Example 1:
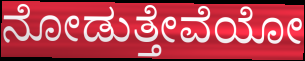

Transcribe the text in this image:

ನೋಡುತ್ತೇವೆಯೋ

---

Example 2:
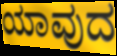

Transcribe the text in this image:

ಯಾವುದ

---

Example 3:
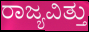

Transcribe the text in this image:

ರಾಜ್ಯವಿತ್ತು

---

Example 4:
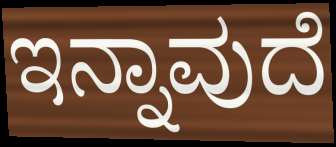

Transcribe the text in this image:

ಇನ್ನಾವುದೆ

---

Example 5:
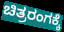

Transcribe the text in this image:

ಚಿತ್ರರಂಗಕ್ಕೆ